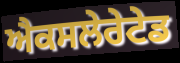
ਐਕਸਲੇਰੇਟੇਡ